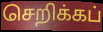
செறிக்கப்